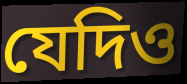
যেদিও